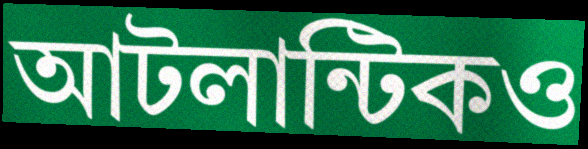
আটলান্টিকও